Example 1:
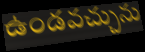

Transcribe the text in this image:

ఉండవచ్చును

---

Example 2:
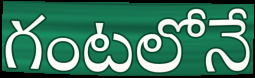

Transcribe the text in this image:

గంటలోనే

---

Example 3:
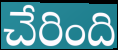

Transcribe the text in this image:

చేరింది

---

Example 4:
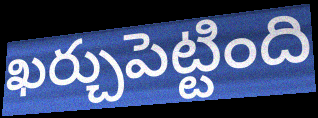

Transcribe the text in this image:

ఖర్చుపెట్టింది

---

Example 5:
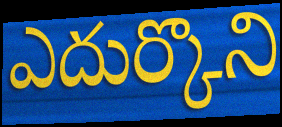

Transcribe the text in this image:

ఎదుర్కొని